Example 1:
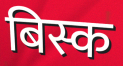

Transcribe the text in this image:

बिस्क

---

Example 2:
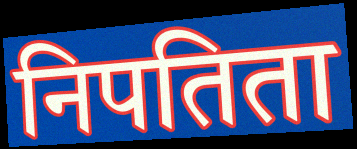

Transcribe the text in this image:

निपतिता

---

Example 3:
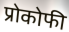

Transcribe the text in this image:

प्रोकोफी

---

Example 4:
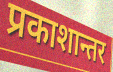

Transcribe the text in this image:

प्रकाशान्तर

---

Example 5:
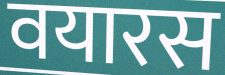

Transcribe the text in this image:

वयारस